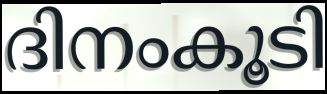
ദിനംകൂടി